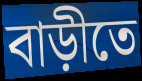
বাড়ীতে